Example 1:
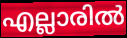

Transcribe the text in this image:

എല്ലാരിൽ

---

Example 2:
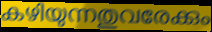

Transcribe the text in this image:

കഴിയുന്നതുവരേക്കും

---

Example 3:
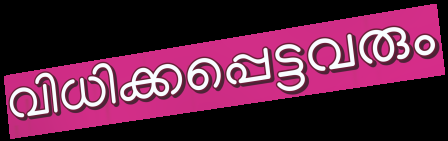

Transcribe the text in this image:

വിധിക്കപ്പെട്ടവരും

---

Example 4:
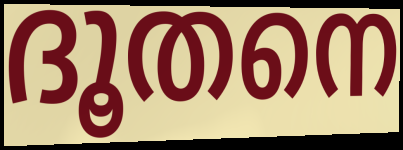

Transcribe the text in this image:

ദൂതനെ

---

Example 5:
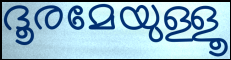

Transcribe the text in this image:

ദൂരമേയുള്ളൂ